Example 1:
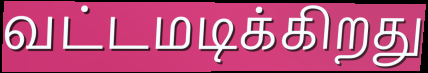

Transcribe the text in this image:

வட்டமடிக்கிறது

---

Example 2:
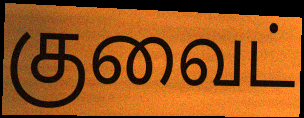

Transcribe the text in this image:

குவைட்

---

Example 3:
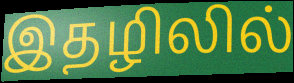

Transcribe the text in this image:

இதழிலில்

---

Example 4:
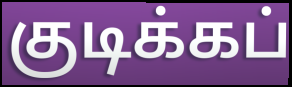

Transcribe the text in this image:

குடிக்கப்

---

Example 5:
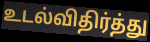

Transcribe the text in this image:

உடல்விதிர்த்து